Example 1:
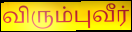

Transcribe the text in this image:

விரும்புவீர்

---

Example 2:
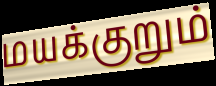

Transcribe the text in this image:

மயக்குறும்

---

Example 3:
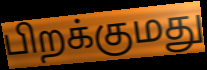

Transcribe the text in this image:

பிறக்குமது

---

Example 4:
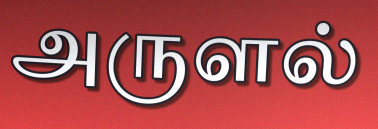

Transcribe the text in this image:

அருளல்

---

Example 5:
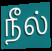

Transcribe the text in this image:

நீல்